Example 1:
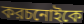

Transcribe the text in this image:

করচনোইকে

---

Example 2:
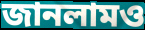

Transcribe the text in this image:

জানলামও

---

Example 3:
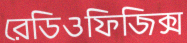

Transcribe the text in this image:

রেডিওফিজিক্স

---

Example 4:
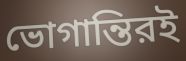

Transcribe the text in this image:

ভোগান্তিরই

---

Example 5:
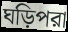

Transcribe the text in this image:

ঘড়িপরা